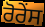
ਰੋਰੇਂਸ